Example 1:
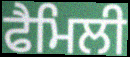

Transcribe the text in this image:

ਫੈਮਿਲੀ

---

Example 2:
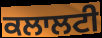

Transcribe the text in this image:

ਕਲਾਲਟੀ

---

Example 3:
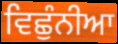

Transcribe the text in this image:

ਵਿਛੁੰਨੀਆ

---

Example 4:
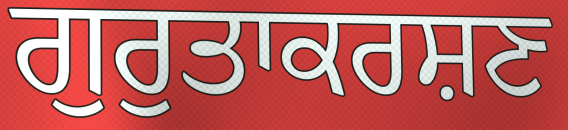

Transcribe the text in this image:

ਗੁਰੁਤਾਕਰਸ਼ਣ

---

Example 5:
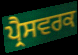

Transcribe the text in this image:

ਪ੍ਰੈਸਵਰਕ